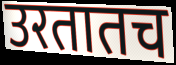
उरतातच